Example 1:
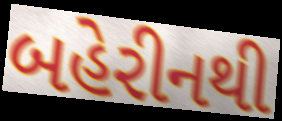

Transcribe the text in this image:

બહેરીનથી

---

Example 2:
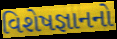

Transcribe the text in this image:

વિશેષજ્ઞાનનો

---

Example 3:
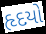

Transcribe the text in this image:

હૃદયો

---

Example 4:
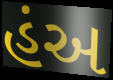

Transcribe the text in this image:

હંઅ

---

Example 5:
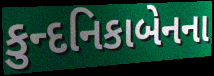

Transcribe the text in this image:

કુન્દનિકાબેનના